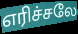
எரிச்சலே